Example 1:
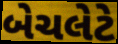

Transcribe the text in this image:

બેચલેટે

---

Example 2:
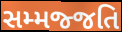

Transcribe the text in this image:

સમ્મજ્જતિ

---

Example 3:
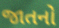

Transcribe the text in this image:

જાતનો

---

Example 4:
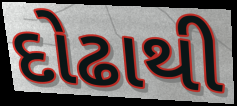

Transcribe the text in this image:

દોઢાથી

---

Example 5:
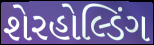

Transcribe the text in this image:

શેરહોલ્ડિંગ